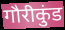
गौरीकुंड